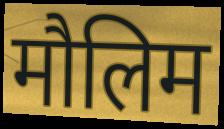
मौलिम